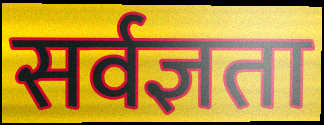
सर्वज्ञता